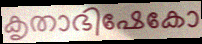
കൃതാഭിഷേകോ